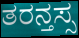
ತರನ್ತಸ್ಸ